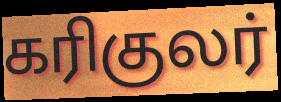
கரிகுலர்